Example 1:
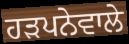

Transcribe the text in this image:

ਹੜਪਨੇਵਾਲੇ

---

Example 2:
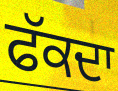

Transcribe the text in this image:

ਫੱਕਦਾ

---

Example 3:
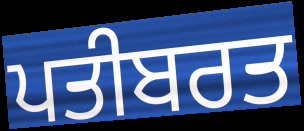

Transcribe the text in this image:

ਪਤੀਬਰਤ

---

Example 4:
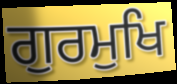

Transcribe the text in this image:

ਗੁਰਮੁਖਿ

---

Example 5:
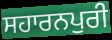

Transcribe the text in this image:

ਸਹਾਰਨਪੁਰੀ